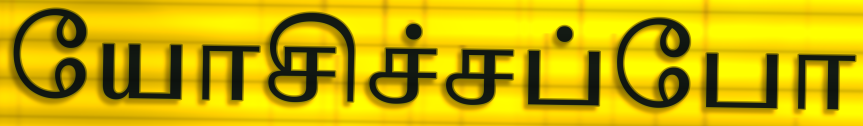
யோசிச்சப்போ